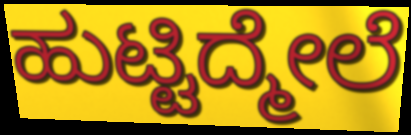
ಹುಟ್ಟಿದ್ಮೇಲೆ